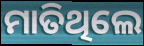
ମାତିଥିଲେ